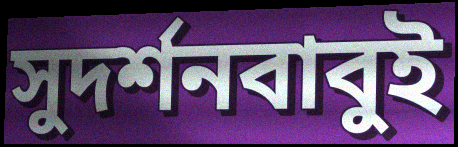
সুদর্শনবাবুই